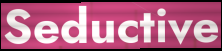
Seductive